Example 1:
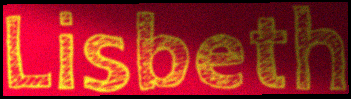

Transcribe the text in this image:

Lisbeth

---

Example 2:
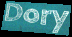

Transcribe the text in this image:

Dory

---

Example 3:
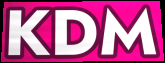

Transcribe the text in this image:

KDM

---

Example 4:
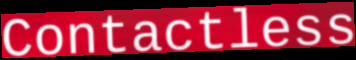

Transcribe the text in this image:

Contactless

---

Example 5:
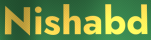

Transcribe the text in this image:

Nishabd